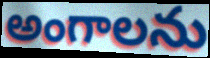
అంగాలను